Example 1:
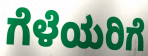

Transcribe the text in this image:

ಗೆಳೆಯರಿಗೆ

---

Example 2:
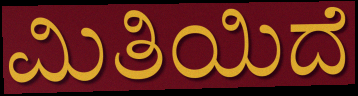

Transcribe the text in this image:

ಮಿತಿಯಿದೆ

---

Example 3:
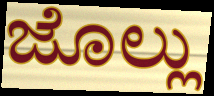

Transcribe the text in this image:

ಜೊಲ್ಲು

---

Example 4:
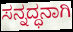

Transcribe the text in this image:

ಸನ್ನದ್ಧನಾಗಿ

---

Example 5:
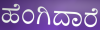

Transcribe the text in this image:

ಹೆಂಗಿದಾರೆ